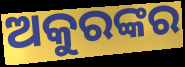
ଅକୁରଙ୍କର